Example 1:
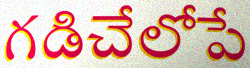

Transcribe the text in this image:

గడిచేలోపే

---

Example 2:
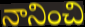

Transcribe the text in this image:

నానించి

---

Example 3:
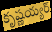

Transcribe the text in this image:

కృష్ణయ్యర్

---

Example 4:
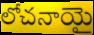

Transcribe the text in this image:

లోచనాయై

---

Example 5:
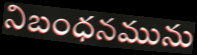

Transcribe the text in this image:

నిబంధనమును